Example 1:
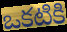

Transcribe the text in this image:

ఒకటికి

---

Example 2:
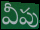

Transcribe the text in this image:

వీపు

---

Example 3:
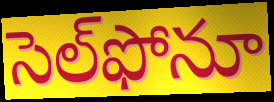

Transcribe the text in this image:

సెల్‌ఫోనూ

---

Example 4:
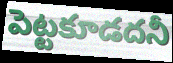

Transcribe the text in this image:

పెట్టకూడదనీ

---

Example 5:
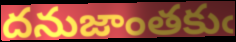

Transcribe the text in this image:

దనుజాంతకుఁ